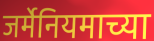
जर्मेनियमाच्या